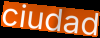
ciudad